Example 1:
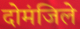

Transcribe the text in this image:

दोमंजिले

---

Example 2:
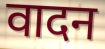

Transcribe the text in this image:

वादन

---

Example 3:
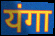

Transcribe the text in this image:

यंगा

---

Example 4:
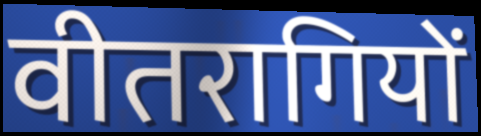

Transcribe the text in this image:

वीतरागियों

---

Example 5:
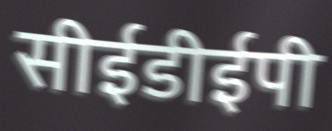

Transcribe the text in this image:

सीईडीईपी